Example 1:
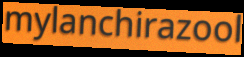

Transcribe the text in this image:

mylanchirazool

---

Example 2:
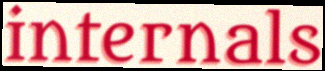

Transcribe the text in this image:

internals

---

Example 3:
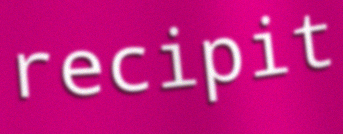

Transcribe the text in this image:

recipit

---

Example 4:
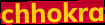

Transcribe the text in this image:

chhokra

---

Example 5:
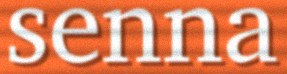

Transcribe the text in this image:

senna